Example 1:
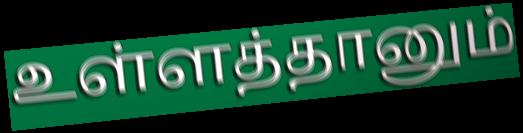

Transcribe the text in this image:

உள்ளத்தானும்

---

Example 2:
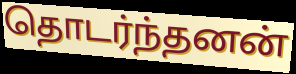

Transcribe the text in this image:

தொடர்ந்தனன்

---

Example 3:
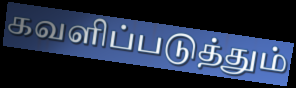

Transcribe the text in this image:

கவளிப்படுத்தும்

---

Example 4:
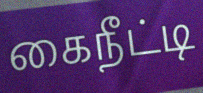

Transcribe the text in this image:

கைநீட்டி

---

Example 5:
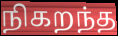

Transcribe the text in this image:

நிகறந்த